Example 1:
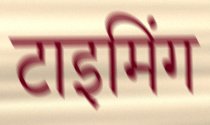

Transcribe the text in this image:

टाइमिंग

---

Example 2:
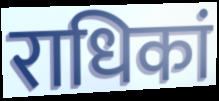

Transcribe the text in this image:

राधिकां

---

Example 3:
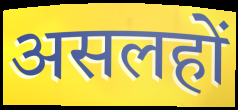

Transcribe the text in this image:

असलहों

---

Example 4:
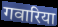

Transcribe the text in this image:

गवारिया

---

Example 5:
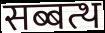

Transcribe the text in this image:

सब्बत्थ